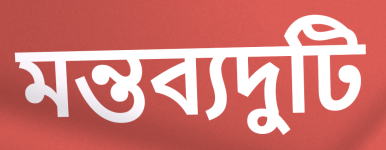
মন্তব্যদুটি